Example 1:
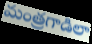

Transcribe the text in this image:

మంత్రగాడిలా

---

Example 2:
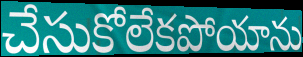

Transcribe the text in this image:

చేసుకోలేకపోయాను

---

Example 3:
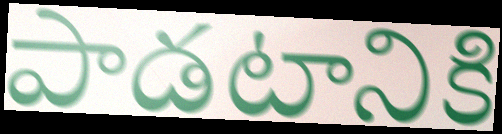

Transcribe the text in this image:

పాడటానికి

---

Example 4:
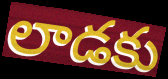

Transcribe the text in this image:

లాడకు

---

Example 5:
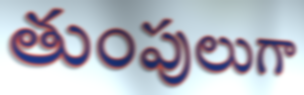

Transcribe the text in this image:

తుంపులుగా